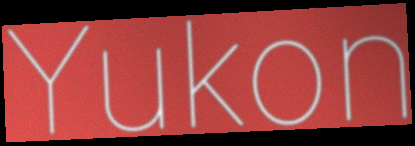
Yukon